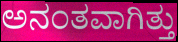
ಅನಂತವಾಗಿತ್ತು